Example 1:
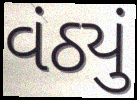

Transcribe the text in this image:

વંઠ્યું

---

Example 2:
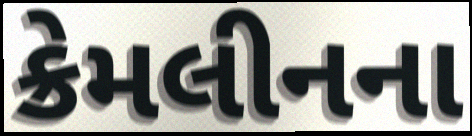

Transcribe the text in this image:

ક્રેમલીનના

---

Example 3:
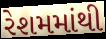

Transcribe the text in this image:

રેશમમાંથી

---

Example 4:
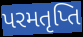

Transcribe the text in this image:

પરમતૃપ્તિ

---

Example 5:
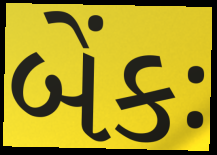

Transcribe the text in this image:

બેંકઃ